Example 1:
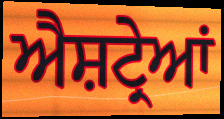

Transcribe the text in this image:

ਐਸ਼ਟ੍ਰੇਆਂ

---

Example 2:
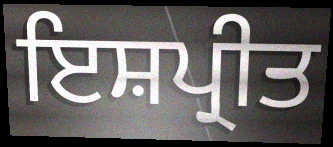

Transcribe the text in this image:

ਇਸ਼ਪ੍ਰੀਤ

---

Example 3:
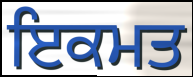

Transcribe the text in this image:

ਇਕਮਤ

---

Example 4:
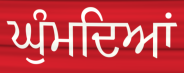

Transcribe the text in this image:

ਘੁੰਮਦਿਆਂ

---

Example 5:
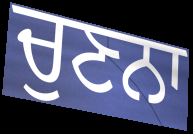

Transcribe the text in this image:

ਚੁਣਨਾ